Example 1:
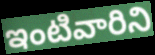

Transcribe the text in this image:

ఇంటివారిని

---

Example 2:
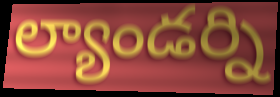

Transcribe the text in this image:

ల్యాండర్ని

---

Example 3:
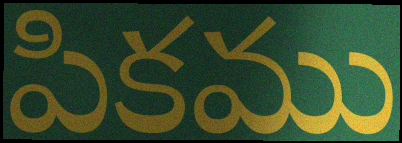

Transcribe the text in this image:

పికము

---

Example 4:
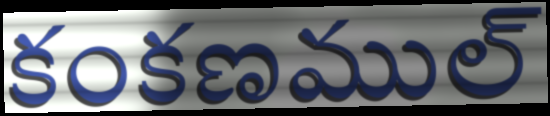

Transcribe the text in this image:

కంకణముల్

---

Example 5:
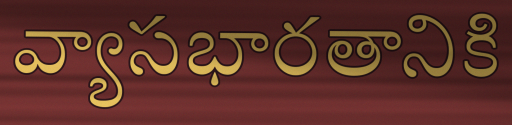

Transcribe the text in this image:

వ్యాసభారతానికి